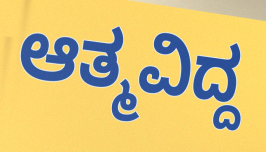
ಆತ್ಮವಿದ್ದ